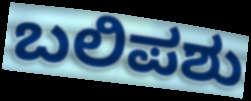
ಬಲಿಪಶು